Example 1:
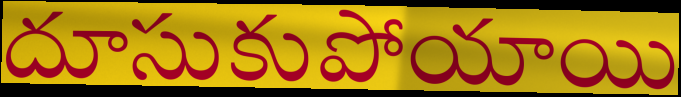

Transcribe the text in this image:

దూసుకుపోయాయి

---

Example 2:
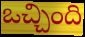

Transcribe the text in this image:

ఒచ్చింది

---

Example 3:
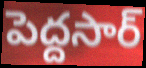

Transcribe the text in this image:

పెద్దసార్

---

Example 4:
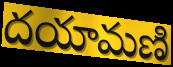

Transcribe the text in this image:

దయామణి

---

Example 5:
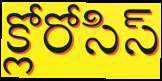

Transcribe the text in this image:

క్లోరోసిస్